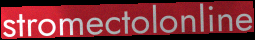
stromectolonline